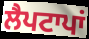
ਲੈਪਟਾਪਾਂ